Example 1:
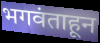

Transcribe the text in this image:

भगवंताहून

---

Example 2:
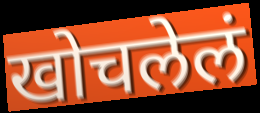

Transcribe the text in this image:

खोचलेलं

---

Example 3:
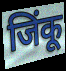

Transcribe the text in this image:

जिंकू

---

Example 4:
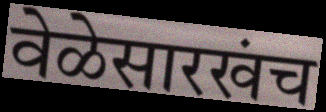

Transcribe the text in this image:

वेळेसारखंच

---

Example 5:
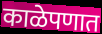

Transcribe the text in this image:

काळेपणात